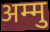
अम्मु